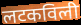
लटकविली